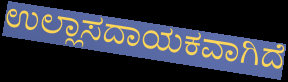
ಉಲ್ಲಾಸದಾಯಕವಾಗಿದೆ